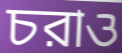
চরাও